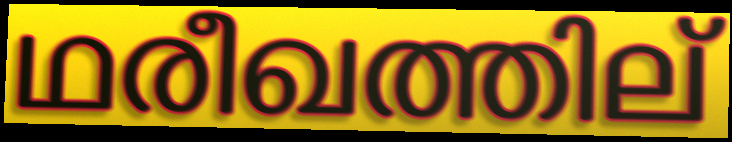
ഥരീഖത്തില്